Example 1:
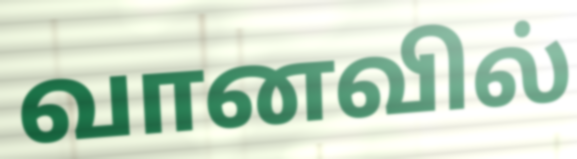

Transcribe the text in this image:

வானவில்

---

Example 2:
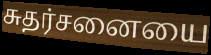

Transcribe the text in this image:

சுதர்சனையை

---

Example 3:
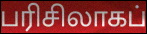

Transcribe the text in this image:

பரிசிலாகப்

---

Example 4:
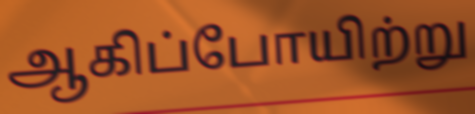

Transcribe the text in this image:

ஆகிப்போயிற்று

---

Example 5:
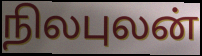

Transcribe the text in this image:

நிலபுலன்